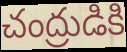
చంద్రుడికి